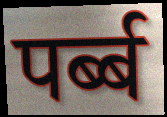
पर्ब्ब